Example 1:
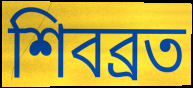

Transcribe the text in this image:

শিবব্রত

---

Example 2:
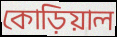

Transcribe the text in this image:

কোড়িয়াল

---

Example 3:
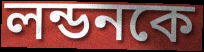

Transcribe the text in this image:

লন্ডনকে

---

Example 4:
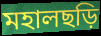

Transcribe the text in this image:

মহালছড়ি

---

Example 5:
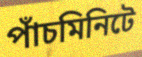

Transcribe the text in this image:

পাঁচমিনিটে